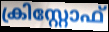
ക്രിസ്റ്റോഫ്